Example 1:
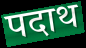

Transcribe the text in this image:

पदाथ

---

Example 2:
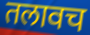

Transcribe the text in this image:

तलावच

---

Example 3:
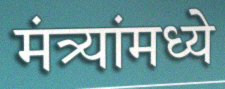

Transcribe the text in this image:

मंत्र्यांमध्ये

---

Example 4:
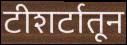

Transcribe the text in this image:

टीशर्टातून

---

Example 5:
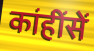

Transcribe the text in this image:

कांहींसें